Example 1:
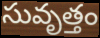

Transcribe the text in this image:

సువృత్తం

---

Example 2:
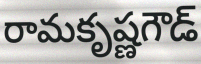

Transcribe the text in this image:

రామకృష్ణగౌడ్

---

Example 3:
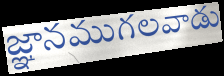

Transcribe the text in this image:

జ్ఞానముగలవాడు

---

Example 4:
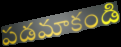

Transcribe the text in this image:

పడమాకండి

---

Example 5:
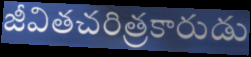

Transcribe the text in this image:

జీవితచరిత్రకారుడు